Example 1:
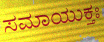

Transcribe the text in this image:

ಸಮಾಯುಕ್ತಃ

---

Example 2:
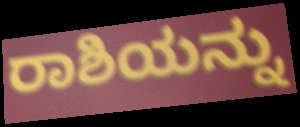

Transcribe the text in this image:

ರಾಶಿಯನ್ನು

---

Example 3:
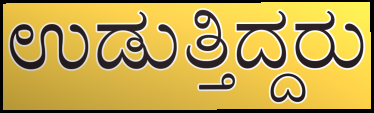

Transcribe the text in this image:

ಉಡುತ್ತಿದ್ದರು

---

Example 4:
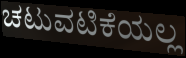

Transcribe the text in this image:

ಚಟುವಟಿಕೆಯಲ್ಲ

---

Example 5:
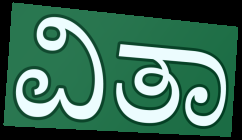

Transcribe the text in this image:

ವಿತಾ